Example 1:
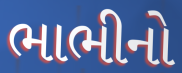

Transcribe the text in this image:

ભાભીનો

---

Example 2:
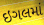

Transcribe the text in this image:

ઇગલમાં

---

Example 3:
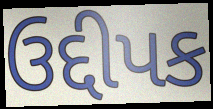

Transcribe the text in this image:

ઉદ્દીપક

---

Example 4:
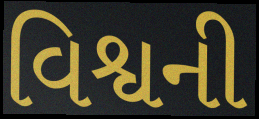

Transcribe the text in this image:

વિશ્વની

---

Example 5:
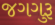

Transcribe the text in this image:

જગગુરૂ